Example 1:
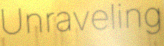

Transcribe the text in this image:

Unraveling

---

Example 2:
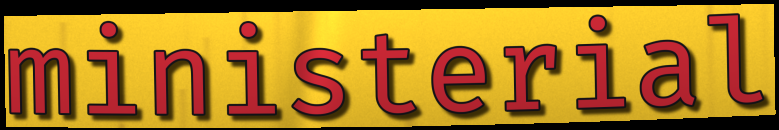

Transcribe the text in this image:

ministerial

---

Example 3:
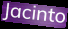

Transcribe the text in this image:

Jacinto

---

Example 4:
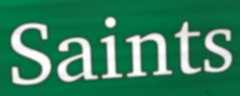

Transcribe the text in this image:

Saints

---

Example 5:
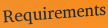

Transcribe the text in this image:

Requirements